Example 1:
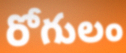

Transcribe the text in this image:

రోగులం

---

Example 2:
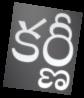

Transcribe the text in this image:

కర్ణీ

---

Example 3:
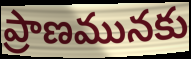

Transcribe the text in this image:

ప్రాణమునకు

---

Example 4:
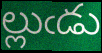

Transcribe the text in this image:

ల్లుఁడు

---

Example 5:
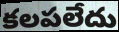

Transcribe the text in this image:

కలపలేదు